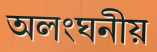
অলংঘনীয়